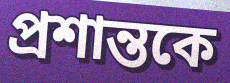
প্রশান্তকে